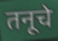
तनूचे